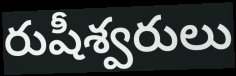
రుషీశ్వరులు